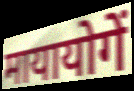
मायायोगें